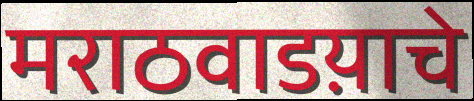
मराठवाडय़ाचे